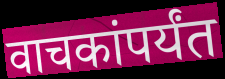
वाचकांपर्यंत